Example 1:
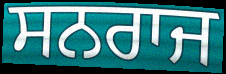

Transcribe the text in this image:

ਸਨਰਾਜ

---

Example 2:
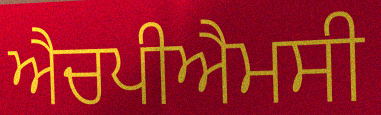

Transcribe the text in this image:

ਐਚਪੀਐਮਸੀ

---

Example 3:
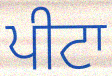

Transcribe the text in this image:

ਪੀਟਾ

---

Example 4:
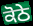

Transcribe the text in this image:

ਕੋਠੇ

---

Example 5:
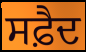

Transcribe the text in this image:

ਸਫ਼ੈਦ